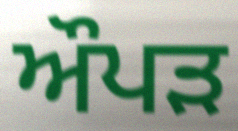
ਔਪੜ